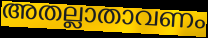
അതല്ലാതാവണം